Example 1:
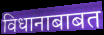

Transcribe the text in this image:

विधानाबाबत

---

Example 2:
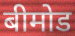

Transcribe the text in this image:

बीमोड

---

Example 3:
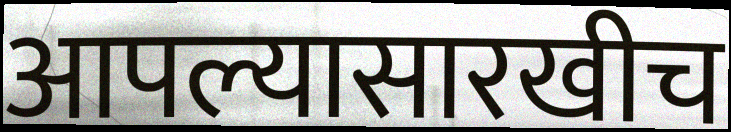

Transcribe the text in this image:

आपल्यासारखीच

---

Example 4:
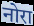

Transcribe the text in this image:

नोरा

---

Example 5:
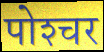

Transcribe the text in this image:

पोश्चर